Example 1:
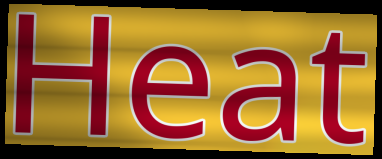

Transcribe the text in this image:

Heat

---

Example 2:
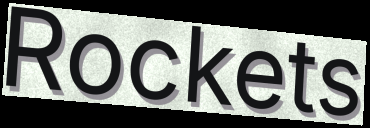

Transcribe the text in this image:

Rockets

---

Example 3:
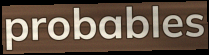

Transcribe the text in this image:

probables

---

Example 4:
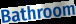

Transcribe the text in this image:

Bathroom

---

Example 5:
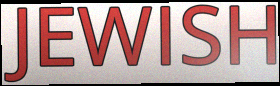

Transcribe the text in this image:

JEWISH